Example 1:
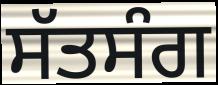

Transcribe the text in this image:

ਸੱਤਸੰਗ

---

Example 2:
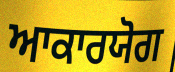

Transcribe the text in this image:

ਆਕਾਰਯੋਗ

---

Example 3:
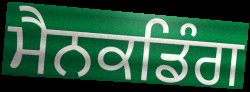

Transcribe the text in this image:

ਮੈਨਕਡਿੰਗ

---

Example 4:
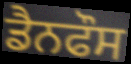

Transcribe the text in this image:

ਡੈਨਫੌਸ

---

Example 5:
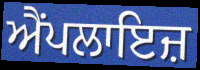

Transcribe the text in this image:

ਐਂਪਲਾਇਜ਼